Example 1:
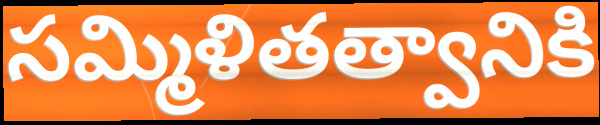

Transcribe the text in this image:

సమ్మిళితత్వానికి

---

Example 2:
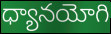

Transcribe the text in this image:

ధ్యానయోగి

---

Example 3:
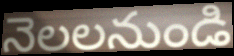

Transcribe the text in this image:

నెలలనుండి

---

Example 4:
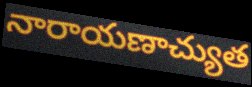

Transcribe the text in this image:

నారాయణాచ్యుత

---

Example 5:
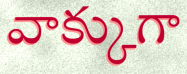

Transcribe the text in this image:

వాక్కుగా